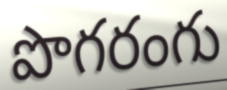
పొగరంగు